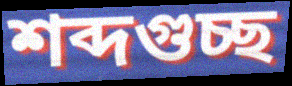
শব্দগুচ্ছ